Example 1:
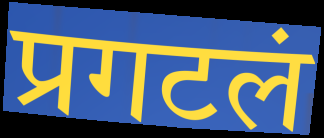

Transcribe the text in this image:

प्रगटलं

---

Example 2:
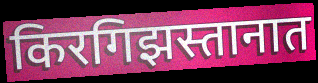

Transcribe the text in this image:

किरगिझस्तानात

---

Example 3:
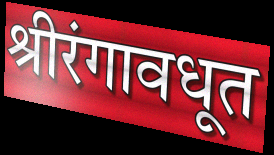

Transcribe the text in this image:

श्रीरंगावधूत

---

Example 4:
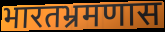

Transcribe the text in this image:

भारतभ्रमणास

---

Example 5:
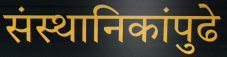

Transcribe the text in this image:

संस्थानिकांपुढे